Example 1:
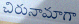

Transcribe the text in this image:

చిరునామాగా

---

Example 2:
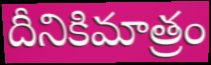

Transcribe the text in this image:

దీనికిమాత్రం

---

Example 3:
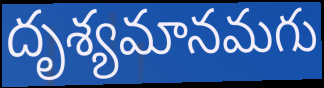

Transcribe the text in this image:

దృశ్యమానమగు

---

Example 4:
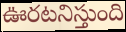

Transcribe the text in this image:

ఊరటనిస్తుంది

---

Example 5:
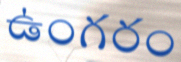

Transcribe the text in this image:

ఉంగరం